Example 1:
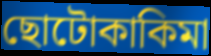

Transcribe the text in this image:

ছোটোকাকিমা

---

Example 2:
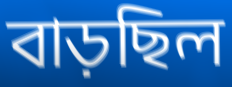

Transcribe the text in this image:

বাড়ছিল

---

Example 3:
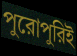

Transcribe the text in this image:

পুরোপুরিই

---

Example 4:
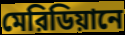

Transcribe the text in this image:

মেরিডিয়ানে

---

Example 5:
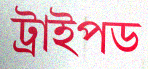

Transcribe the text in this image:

ট্রাইপড